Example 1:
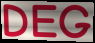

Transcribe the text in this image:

DEG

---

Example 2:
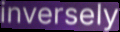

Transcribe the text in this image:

inversely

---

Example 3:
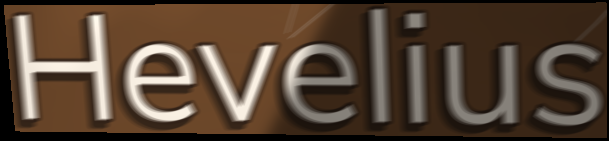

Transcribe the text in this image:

Hevelius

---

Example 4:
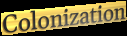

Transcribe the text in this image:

Colonization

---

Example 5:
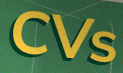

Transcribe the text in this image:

CVs